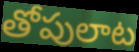
తోపులాట